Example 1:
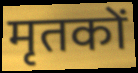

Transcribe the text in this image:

मृतकों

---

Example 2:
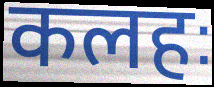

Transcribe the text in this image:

कलहः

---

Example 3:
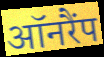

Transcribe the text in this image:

ऑनरैंप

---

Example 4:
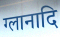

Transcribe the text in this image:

ग्लानादि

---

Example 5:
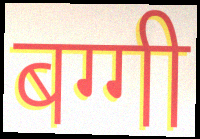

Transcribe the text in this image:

बग्गी